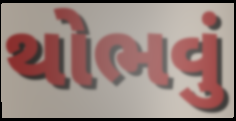
થોભવું